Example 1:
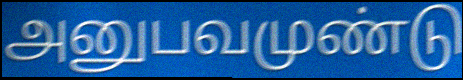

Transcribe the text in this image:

அனுபவமுண்டு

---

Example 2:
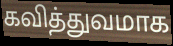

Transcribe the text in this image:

கவித்துவமாக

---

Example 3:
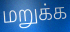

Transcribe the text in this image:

மறுக்க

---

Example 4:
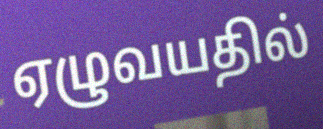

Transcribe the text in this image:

ஏழுவயதில்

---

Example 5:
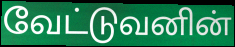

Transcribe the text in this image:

வேட்டுவனின்